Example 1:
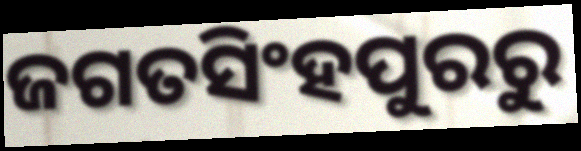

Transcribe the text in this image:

ଜଗତସିଂହପୁରରୁ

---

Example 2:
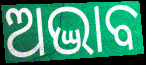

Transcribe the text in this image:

ଅଦ୍ଭାବ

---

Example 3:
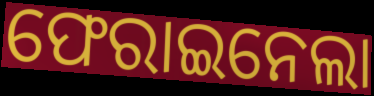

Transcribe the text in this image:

ଫେରାଇନେଲା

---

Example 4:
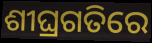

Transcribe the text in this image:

ଶୀଘ୍ରଗତିରେ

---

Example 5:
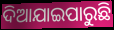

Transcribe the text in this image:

ଦିଆଯାଇପାରୁଛି